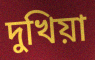
দুখিয়া